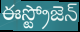
ఈస్ట్రోజెన్